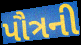
પૌત્રની